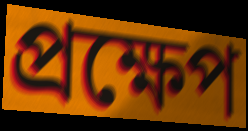
প্ৰক্ষেপ